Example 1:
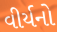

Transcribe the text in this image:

વીર્યનો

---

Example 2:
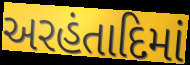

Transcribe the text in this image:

અરહંતાદિમાં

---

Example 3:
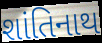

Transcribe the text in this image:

શાંતિનાથ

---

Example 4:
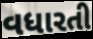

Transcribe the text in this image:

વધારતી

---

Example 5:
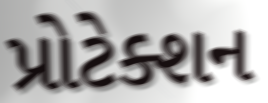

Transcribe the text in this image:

પ્રોટેક્શન